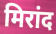
मिरांद